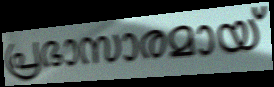
പ്രഭാസാരമായ്